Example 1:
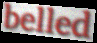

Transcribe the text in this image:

belled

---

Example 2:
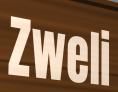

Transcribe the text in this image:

Zweli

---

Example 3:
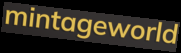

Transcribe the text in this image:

mintageworld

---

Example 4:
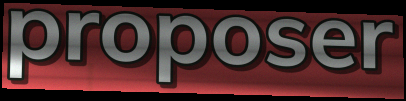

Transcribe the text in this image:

proposer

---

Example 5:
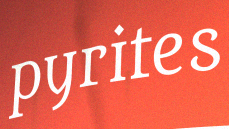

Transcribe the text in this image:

pyrites